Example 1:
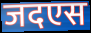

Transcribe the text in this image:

जदएस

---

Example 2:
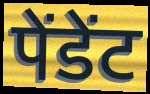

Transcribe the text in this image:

पेंडेंट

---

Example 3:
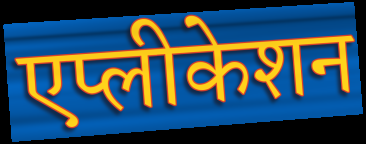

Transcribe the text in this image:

एप्लीकेशन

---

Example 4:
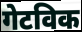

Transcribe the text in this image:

गेटविक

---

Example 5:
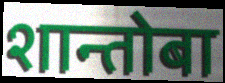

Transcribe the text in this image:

शान्तोबा